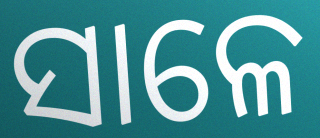
ସାଳେ